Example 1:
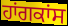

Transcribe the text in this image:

ਹਾਂਗਕਾਂਸ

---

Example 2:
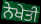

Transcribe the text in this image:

ਨੇਖੇਤੀ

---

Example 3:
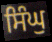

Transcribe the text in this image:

ਸਿੰਘੁ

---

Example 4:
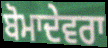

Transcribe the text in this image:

ਬੋਮਾਦੇਵਰਾ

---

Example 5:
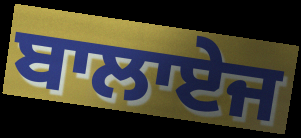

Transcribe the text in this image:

ਬਾਲਾਏਜ